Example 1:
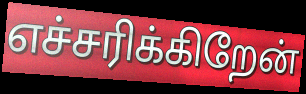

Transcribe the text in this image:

எச்சரிக்கிறேன்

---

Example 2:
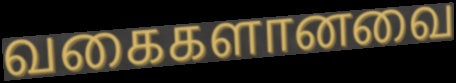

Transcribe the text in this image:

வகைகளானவை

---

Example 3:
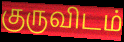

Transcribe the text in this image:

குருவிடம்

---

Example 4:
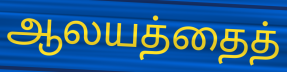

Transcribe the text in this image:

ஆலயத்தைத்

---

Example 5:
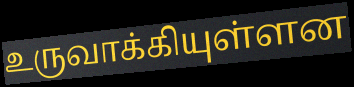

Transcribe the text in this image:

உருவாக்கியுள்ளன